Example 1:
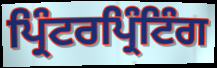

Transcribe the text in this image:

ਪ੍ਰਿੰਟਰਪ੍ਰਿੰਟਿੰਗ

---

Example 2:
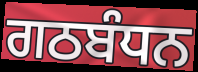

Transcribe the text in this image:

ਗਠਬੰਧਨ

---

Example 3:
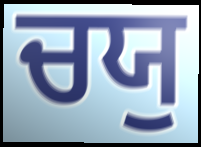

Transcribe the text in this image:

ਚਯੁ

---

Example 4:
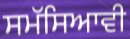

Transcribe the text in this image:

ਸਮੱਸਿਆਵੀ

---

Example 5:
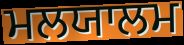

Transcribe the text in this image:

ਮਲਯਾਲਮ